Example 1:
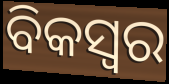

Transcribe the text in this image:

ବିକସ୍ୱର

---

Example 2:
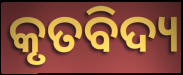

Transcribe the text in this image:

କୃତବିଦ୍ୟ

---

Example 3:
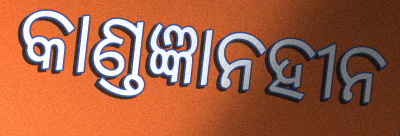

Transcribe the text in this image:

କାଣ୍ଡଜ୍ଞାନହୀନ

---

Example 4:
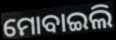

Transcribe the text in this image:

ମୋବାଇଲି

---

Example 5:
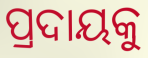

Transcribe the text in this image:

ପ୍ରଦାୟକୁ